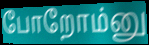
போறோம்னு